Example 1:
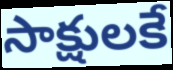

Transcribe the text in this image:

సాక్షులకే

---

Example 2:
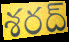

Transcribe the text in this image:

శరద్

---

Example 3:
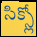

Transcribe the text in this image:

సిక్స్లో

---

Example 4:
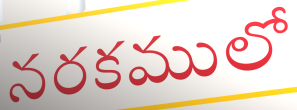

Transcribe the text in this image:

నరకములో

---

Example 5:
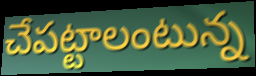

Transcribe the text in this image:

చేపట్టాలంటున్న